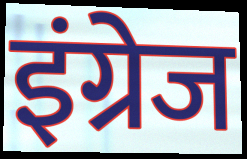
इंग्रेज